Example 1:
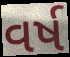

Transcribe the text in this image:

વર્ષ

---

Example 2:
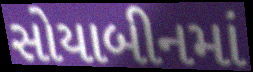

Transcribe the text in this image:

સોયાબીનમાં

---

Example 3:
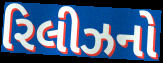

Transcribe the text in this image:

રિલીઝનો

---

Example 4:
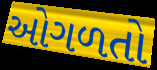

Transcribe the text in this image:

ઓગળતો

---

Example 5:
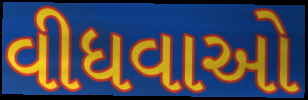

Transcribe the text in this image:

વીધવાઓ